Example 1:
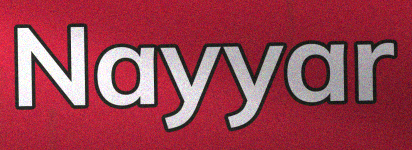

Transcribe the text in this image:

Nayyar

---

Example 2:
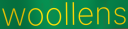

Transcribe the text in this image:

woollens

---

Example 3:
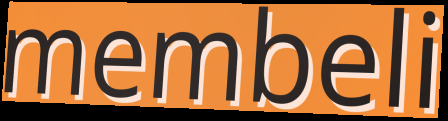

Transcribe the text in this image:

membeli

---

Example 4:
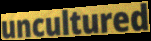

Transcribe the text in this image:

uncultured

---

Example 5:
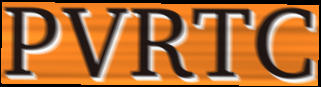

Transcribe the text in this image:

PVRTC